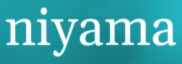
niyama